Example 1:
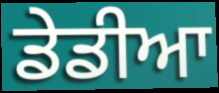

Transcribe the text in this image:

ਡੇਡੀਆ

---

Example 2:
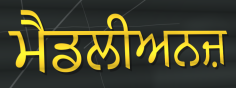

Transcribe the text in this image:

ਮੈਡਲੀਅਨਜ਼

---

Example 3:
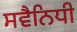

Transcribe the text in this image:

ਸਵੈਨਿਧੀ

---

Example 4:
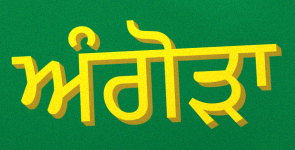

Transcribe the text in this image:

ਅੰਗੋੜਾ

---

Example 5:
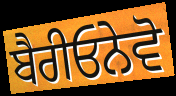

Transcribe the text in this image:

ਬੈਰੀਓਨੇਵੋ